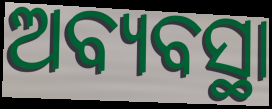
ଅବ୍ୟବସ୍ଥା